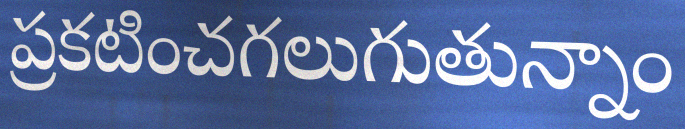
ప్రకటించగలుగుతున్నాం